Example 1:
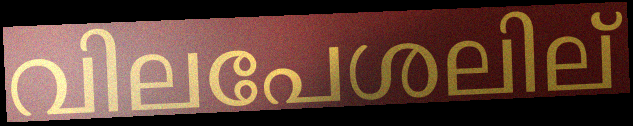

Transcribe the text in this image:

വിലപേശലില്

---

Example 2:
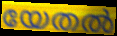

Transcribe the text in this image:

യേതൽ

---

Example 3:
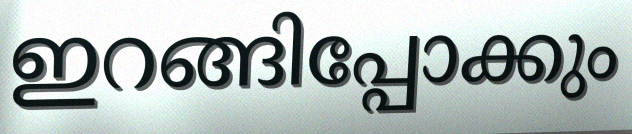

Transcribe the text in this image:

ഇറങ്ങിപ്പോക്കും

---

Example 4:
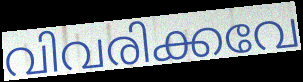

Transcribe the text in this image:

വിവരിക്കവേ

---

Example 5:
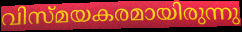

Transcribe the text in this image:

വിസ്മയകരമായിരുന്നു